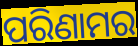
ପରିଣାମର